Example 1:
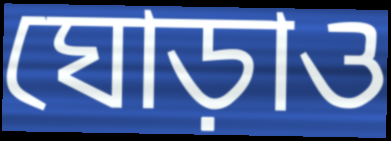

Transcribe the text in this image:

ঘোড়াও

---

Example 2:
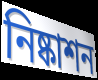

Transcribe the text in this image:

নিষ্কাশন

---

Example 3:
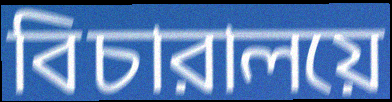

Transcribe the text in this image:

বিচারালয়ে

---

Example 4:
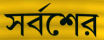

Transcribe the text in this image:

সর্বশের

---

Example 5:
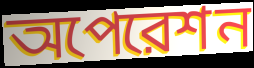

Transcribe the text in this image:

অপেরেশন